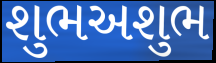
શુભઅશુભ